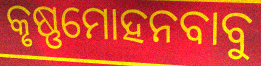
କୃଷ୍ଣମୋହନବାବୁ